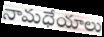
నామధేయాలు